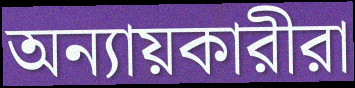
অন্যায়কারীরা